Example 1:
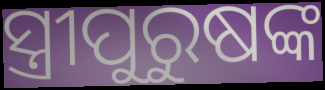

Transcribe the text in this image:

ସ୍ତ୍ରୀପୁରୁଷଙ୍କ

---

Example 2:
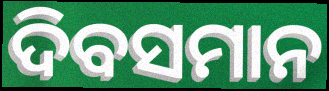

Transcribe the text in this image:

ଦିବସମାନ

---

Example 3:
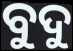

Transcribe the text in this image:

ବୁଦୁ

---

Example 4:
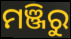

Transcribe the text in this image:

ମଞ୍ଜିରୁ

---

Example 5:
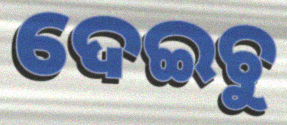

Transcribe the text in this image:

ଦେଇଚୁ